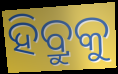
ହିବ୍ରୁକୁ